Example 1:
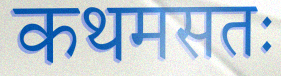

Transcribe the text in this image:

कथमसतः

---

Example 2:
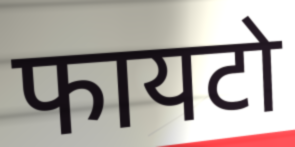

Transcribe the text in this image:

फायटो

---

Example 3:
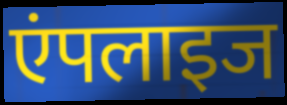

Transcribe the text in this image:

एंपलाइज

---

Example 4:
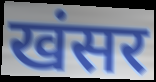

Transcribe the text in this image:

खंसर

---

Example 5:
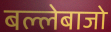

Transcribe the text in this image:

बल्लेबाजो